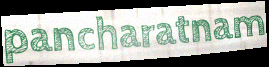
pancharatnam